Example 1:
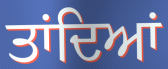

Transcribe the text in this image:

ਤਾਂਦਿਆਂ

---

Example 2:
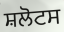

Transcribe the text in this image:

ਸ਼ਲੋਟਸ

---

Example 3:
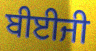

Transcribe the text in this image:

ਬੀਈਜੀ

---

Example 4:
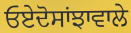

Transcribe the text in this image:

ਓਏਦੋਸਾਂਝਾਵਾਲੇ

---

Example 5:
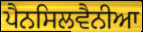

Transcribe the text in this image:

ਪੈਨਸਿਲਵੈਨੀਆ